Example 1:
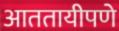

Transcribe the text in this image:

आततायीपणे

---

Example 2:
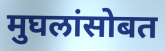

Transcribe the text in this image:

मुघलांसोबत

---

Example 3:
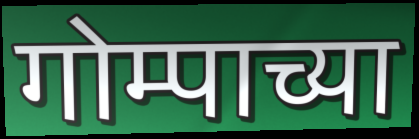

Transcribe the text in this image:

गोम्पाच्या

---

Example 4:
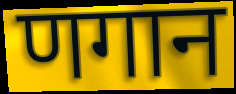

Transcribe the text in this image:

णगान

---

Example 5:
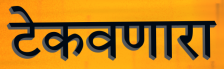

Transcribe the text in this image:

टेकवणारा